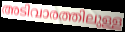
അടിവാരത്തിലുള്ള